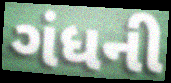
ગંધની